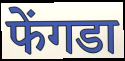
फेंगडा